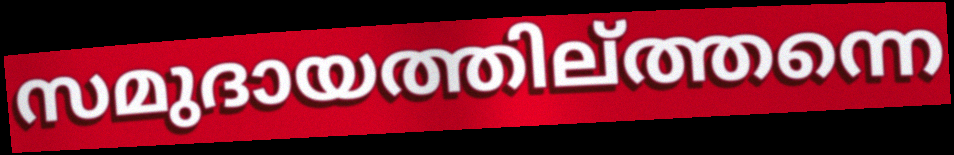
സമുദായത്തില്ത്തന്നെ